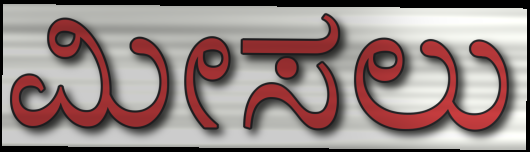
ಮೀಸಲು